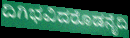
ದಿಗಿಭವಿದರೊಡನೈದಿ